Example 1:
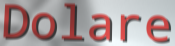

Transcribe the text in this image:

Dolare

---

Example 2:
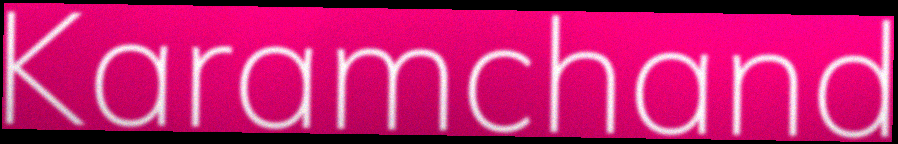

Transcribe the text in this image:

Karamchand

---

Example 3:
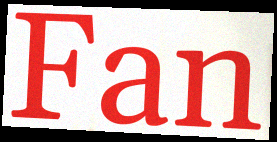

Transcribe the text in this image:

Fan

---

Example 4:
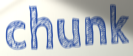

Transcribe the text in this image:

chunk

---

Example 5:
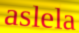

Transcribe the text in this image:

aslela